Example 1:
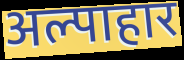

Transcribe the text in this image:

अल्पाहार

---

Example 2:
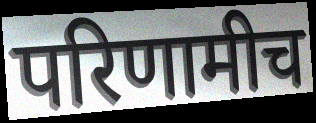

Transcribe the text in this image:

परिणामीच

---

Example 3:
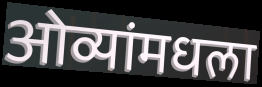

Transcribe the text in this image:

ओव्यांमधला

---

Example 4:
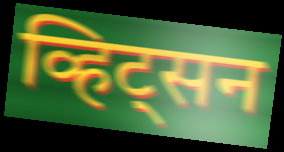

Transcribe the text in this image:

व्हिट्सन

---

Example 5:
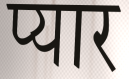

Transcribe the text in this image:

प्यार